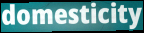
domesticity